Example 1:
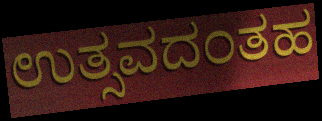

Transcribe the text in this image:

ಉತ್ಸವದಂತಹ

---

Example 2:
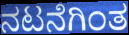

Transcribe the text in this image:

ನಟನೆಗಿಂತ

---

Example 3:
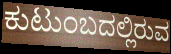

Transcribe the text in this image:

ಕುಟುಂಬದಲ್ಲಿರುವ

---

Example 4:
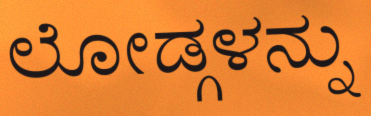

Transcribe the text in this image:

ಲೋಡ್ಗಳನ್ನು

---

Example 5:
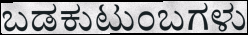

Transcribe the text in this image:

ಬಡಕುಟುಂಬಗಳು